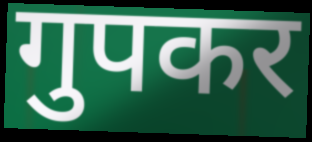
गुपकर